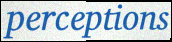
perceptions